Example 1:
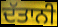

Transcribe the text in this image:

ਦੱਤਾਨੀ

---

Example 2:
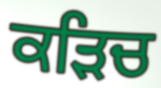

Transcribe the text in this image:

ਕੜਿਚ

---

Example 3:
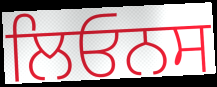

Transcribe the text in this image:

ਲਿਓਨਸ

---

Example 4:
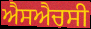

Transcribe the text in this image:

ਐਸਐਚਸੀ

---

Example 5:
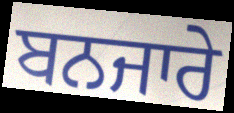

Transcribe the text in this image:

ਬਨਜਾਰੇ